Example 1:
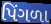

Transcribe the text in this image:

પિંગળા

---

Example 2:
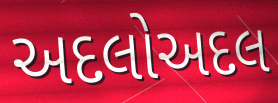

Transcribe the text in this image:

અદલોઅદલ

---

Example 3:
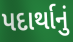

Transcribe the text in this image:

પદાર્થાનું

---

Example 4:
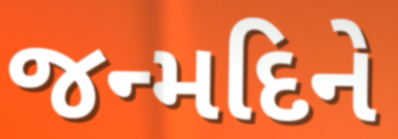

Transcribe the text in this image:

જન્મદિને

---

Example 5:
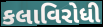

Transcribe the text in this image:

કલાવિરોધી